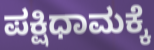
ಪಕ್ಷಿಧಾಮಕ್ಕೆ